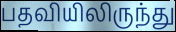
பதவியிலிருந்து